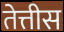
तेत्तीस